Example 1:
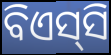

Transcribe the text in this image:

ବିଏସ୍‌ସି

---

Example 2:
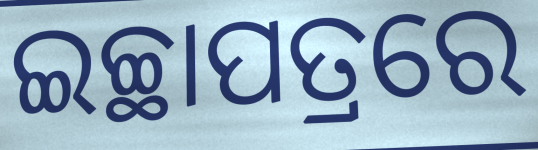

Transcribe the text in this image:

ଇଚ୍ଛାପତ୍ରରେ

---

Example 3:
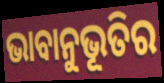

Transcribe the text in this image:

ଭାବାନୁଭୂତିର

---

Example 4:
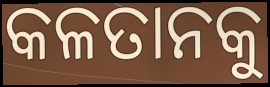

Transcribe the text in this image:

କଳତାନକୁ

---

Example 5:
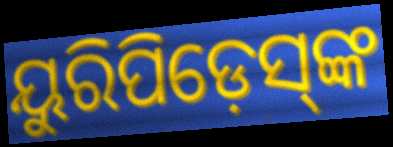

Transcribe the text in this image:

ୟୁରିପିଡ଼େସ୍‌ଙ୍କ